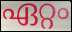
ഏറ്റം